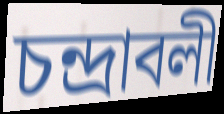
চন্দ্রাবলী